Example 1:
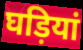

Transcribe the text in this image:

घड़ियां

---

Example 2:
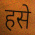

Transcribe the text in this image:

हसे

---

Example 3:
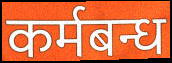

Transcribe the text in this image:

कर्मबन्ध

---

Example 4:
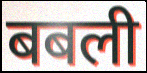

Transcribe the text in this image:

बबली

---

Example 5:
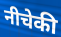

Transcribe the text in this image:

नीचेकी